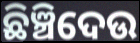
ଛିଞ୍ଚିଦେଉ